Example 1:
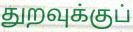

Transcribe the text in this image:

துறவுக்குப்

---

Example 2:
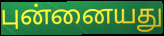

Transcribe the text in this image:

புன்னையது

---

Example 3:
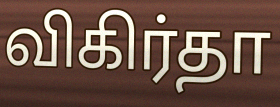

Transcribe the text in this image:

விகிர்தா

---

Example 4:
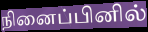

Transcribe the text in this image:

நினைப்பினில்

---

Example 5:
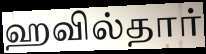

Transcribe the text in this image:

ஹவில்தார்